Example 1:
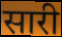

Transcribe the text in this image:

सारी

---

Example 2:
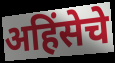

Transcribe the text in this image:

अहिंसेचे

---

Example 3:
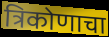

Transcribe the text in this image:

त्रिकोणाचा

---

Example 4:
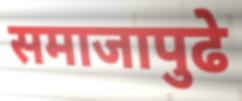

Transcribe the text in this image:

समाजापुढे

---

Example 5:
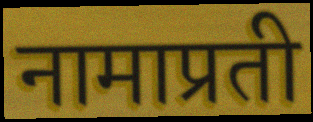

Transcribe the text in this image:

नामाप्रती